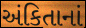
અંકિતાનાં